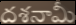
దశనామీ